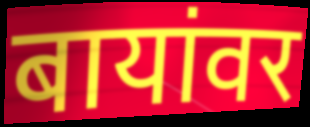
बायांवर